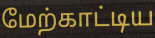
மேற்காட்டிய